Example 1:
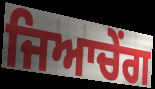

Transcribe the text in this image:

ਜਿਆਚੇਂਗ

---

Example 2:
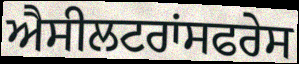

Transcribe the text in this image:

ਐਸੀਲਟਰਾਂਸਫਰੇਸ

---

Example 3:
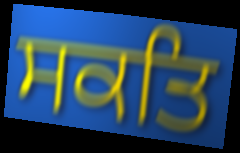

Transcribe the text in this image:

ਸਕਤਿ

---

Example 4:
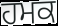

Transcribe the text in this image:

ਹਮਕ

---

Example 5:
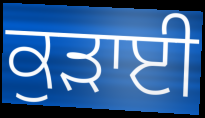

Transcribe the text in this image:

ਕੁੜਾਈ